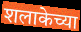
शलाकेच्या